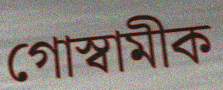
গোস্বামীক